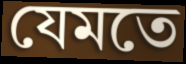
যেমতে